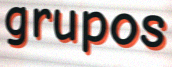
grupos